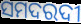
ସମଦରଦୀ